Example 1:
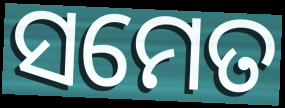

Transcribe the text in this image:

ସମେତ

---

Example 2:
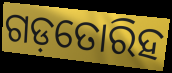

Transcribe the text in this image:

ଗଡ଼ତୋରିହ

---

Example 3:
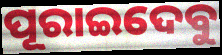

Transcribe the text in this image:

ପୂରାଇଦେବୁ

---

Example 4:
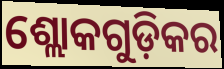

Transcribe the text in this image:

ଶ୍ଲୋକଗୁଡ଼ିକର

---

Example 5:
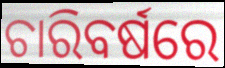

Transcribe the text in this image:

ଚାରିବର୍ଷରେ